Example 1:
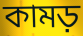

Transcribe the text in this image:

কামড়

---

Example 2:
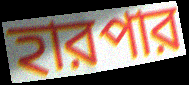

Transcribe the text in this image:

হারপার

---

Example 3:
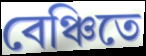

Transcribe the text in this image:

বেঞ্চিতে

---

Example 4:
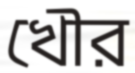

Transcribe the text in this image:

খৌর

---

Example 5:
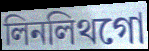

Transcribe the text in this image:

লিনলিথগো